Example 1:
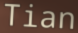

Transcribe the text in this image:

Tian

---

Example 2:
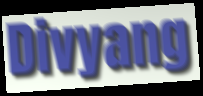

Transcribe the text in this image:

Divyang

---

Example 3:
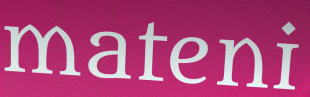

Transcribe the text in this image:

mateni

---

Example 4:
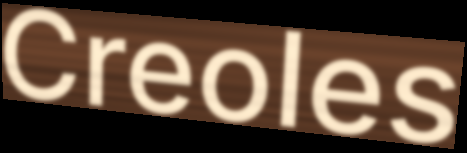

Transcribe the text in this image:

Creoles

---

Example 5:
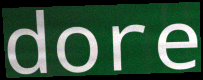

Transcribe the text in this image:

dore